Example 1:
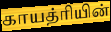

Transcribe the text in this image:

காயத்ரியின்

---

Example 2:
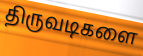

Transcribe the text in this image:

திருவடிகளை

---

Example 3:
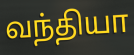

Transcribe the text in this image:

வந்தியா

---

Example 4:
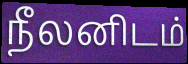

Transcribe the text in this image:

நீலனிடம்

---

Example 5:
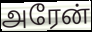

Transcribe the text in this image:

அரேன்